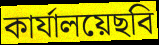
কার্যালয়েছবি